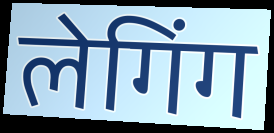
लेगिंग